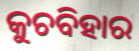
କୁଚବିହାର